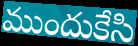
ముందుకేసి